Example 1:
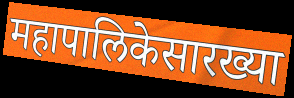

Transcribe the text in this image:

महापालिकेसारख्या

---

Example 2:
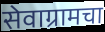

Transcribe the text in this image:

सेवाग्रामचा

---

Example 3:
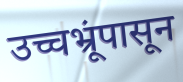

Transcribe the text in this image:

उच्चभ्रूंपासून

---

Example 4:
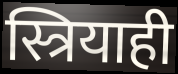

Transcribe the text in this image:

स्त्रियाही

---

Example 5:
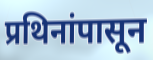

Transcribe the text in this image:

प्रथिनांपासून